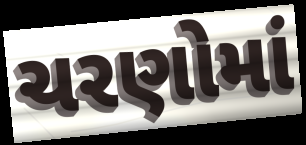
ચરણોમાં